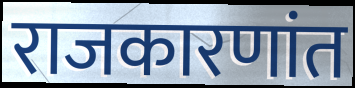
राजकारणांत